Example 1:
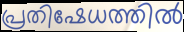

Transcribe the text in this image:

പ്രതിഷേധത്തിൽ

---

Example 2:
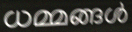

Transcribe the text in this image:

ധമ്മങ്ങൾ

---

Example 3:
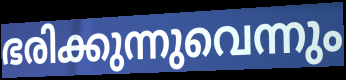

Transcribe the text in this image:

ഭരിക്കുന്നുവെന്നും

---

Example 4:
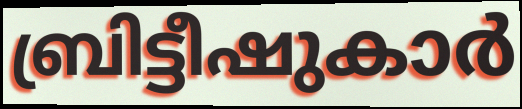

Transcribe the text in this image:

ബ്രിട്ടീഷുകാർ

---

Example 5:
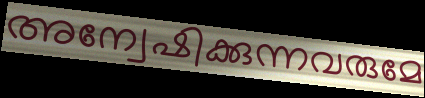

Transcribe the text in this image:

അന്വേഷിക്കുന്നവരുമേ